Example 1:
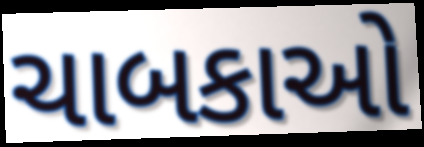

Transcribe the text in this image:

ચાબકાઓ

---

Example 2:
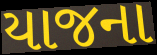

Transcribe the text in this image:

યાજના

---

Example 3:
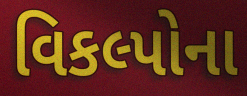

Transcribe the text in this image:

વિકલ્પોના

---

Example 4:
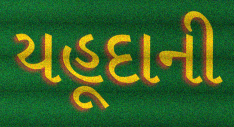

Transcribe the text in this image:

યહૂદાની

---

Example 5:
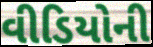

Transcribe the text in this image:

વીડિયોની